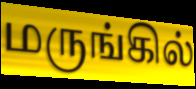
மருங்கில்